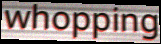
whopping